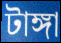
টাঙ্গা